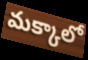
మక్కాలో